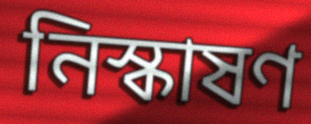
নিস্কাষণ